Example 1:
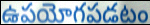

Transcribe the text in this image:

ఉపయోగపడటం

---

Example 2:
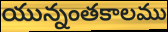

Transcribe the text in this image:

యున్నంతకాలము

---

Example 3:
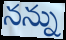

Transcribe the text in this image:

నన్ను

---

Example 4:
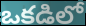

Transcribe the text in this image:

ఒకడిలో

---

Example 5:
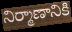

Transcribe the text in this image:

నిర్మాణానికి